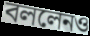
বললেনও